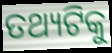
ତଥ୍ୟଟିକୁ